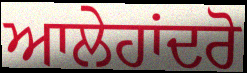
ਆਲੇਹਾਂਦਰੋ